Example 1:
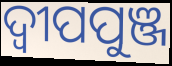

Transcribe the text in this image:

ଦ୍ଵୀପପୁଞ୍ଜ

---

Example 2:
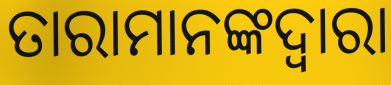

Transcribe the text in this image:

ତାରାମାନଙ୍କଦ୍ୱାରା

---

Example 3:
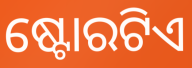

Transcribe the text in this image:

ଷ୍ଟୋରଟିଏ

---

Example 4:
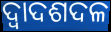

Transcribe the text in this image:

ଦ୍ୱାଦଶଦଳ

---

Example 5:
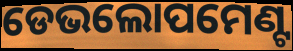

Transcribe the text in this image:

ଡେଭଲୋପମେଣ୍ଟ